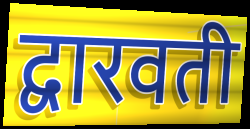
द्वारवती